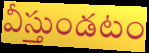
వీస్తుండటం